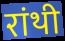
रांथी